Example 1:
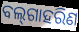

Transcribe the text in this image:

ବଲ୍‌ଗାହରିଣ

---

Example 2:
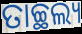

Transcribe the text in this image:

ତାଚ୍ଛଲ୍ଯ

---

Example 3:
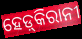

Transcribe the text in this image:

ହେଡ଼୍‌କିରାନୀ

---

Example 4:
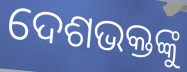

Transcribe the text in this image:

ଦେଶଭକ୍ତଙ୍କୁ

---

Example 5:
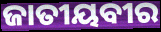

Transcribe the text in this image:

ଜାତୀୟବୀର